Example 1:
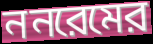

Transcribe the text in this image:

ননরেমের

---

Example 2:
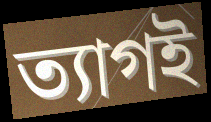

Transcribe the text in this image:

ত্যাগই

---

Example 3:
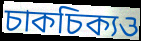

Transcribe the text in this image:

চাকচিক্যও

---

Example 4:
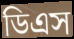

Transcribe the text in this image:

ডিএস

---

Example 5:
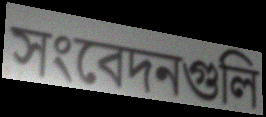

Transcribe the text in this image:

সংবেদনগুলি